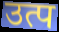
उत्प